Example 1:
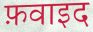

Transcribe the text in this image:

फ़वाइद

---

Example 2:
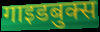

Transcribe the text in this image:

गाइडबुक्स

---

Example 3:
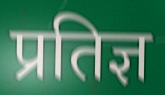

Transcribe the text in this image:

प्रतिज्ञ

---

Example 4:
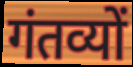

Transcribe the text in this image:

गंतव्यों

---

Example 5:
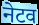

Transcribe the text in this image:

नेटव